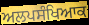
ਅਲਪਸੰਖਿਆਕ